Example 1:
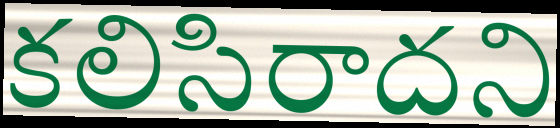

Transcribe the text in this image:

కలిసిరాదని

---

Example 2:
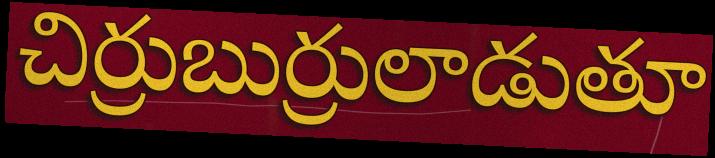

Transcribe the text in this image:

చిర్రుబుర్రులాడుతూ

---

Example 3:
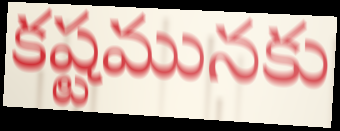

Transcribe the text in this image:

కష్టమునకు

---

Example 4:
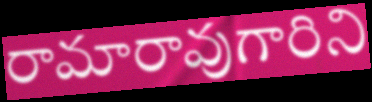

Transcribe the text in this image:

రామారావుగారిని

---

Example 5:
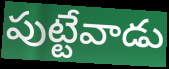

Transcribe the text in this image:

పుట్టేవాడు